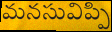
మనసువిప్పి